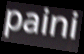
paini